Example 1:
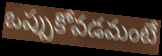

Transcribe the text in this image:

ఒప్పుకోవడమంటే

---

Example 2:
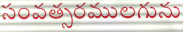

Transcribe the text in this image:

సంవత్సరములగును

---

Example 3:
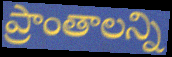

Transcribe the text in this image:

ప్రాంతాలన్ని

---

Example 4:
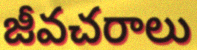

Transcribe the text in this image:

జీవచరాలు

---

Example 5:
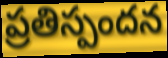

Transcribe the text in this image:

ప్రతిస్పందన